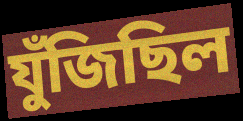
যুঁজিছিল